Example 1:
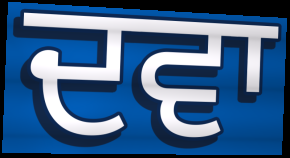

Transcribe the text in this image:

ਦਵਾ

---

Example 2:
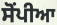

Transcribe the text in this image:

ਸੋਂਪੀਆ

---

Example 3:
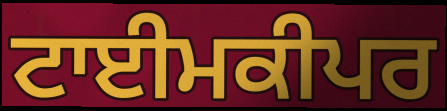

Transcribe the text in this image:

ਟਾਈਮਕੀਪਰ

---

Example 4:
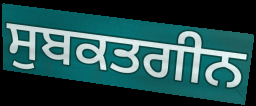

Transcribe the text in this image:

ਸੁਬਕਤਗੀਨ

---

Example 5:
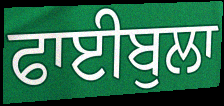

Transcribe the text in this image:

ਫਾਈਬੁਲਾ